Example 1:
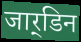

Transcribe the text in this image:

जार्डिन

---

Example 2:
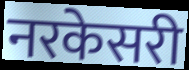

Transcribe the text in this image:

नरकेसरी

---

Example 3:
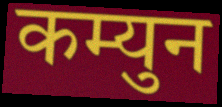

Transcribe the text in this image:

कम्युन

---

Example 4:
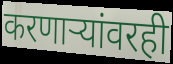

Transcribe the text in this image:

करणाऱ्यांवरही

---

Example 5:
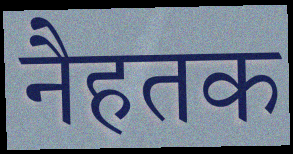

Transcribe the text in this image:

नैहतक